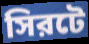
সিরটে